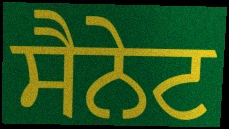
ਸੈਨੇਟ